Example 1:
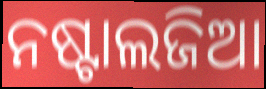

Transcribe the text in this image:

ନଷ୍ଟାଲଜିଆ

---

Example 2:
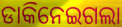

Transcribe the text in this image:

ଡାକିନେଇଗଲା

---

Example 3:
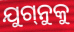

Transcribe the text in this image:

ଯୁଗ୍‌ନୁକୁ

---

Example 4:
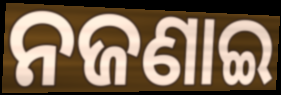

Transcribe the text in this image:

ନଜଣାଇ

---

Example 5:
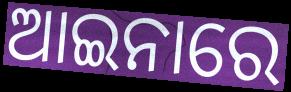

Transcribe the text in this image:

ଆଇନାରେ